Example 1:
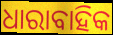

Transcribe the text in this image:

ଧାରାବାହିକ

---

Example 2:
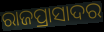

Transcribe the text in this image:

ରାଜପ୍ରାସାଦର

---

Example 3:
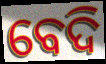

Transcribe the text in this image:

ବେଦି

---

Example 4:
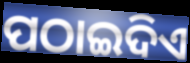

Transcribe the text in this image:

ପଠାଇଦିଏ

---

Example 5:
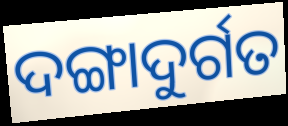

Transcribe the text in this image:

ଦଙ୍ଗାଦୁର୍ଗତ